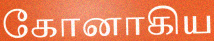
கோனாகிய